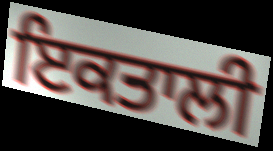
ਇਕਤਾਲੀ